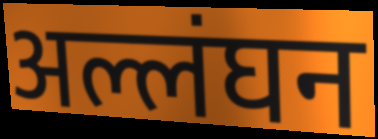
अल्लंघन